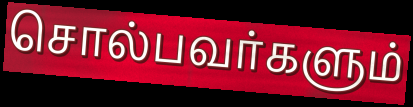
சொல்பவர்களும்